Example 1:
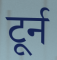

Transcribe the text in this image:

टूर्न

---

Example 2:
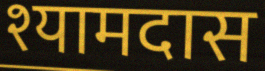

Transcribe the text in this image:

श्यामदास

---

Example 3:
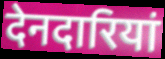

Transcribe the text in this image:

देनदारियां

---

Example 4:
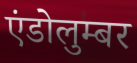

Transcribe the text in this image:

एंडोलुम्बर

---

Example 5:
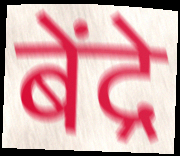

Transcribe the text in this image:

बेंद्रे